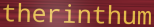
therinthum